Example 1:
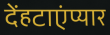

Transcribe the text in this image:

देंहटाएंप्यार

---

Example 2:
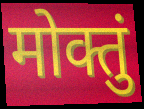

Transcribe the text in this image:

मोक्तुं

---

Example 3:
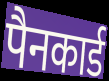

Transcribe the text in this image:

पैनकार्ड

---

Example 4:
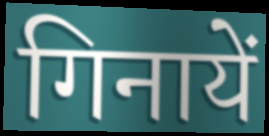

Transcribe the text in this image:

गिनायें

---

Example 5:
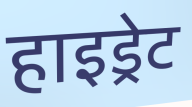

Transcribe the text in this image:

हाइड्रेट